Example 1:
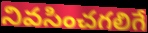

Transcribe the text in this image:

నివసించగలిగే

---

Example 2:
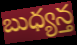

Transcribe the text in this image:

బుధ్యన్త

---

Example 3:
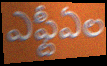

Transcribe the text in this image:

ఎఫ్టీఏల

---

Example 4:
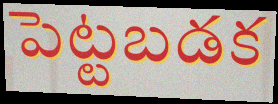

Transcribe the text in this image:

పెట్టబడక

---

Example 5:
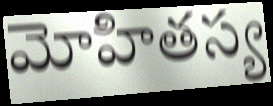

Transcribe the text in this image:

మోహితస్య